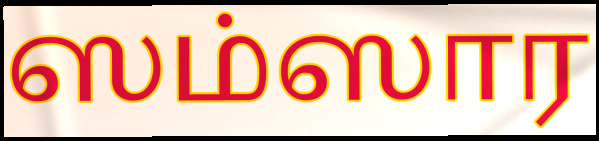
ஸம்ஸார